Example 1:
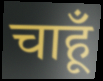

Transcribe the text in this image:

चाहूँ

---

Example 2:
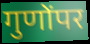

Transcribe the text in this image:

गुणोंपर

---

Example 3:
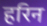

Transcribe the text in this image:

हरिन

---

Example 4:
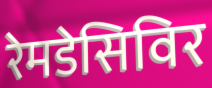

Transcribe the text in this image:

रेमडेसिविर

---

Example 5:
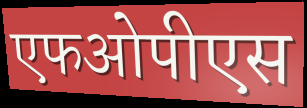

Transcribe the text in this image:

एफओपीएस